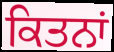
ਕਿਤਨਾਂ